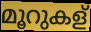
മൂറുകള്